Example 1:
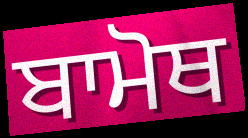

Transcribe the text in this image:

ਬਾਮੋਥ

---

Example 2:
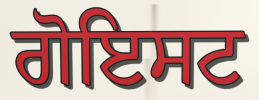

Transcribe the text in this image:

ਗੋਇਸਟ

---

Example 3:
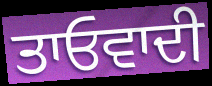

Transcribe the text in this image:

ਤਾਓਵਾਦੀ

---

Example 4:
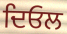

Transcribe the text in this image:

ਦਿਓਲ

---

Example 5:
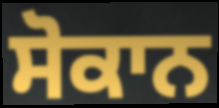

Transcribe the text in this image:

ਸੋਕਾਨ